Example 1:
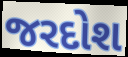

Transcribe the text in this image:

જરદોશ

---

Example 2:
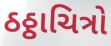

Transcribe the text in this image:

ઠઠ્ઠાચિત્રો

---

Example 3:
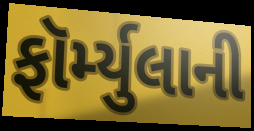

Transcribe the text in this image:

ફૉર્મ્યુલાની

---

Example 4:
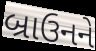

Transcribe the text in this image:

બ્રાઉનને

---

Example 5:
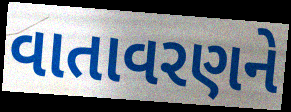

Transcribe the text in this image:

વાતાવરણને